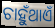
ଚାହୁଁଥାଏଁ